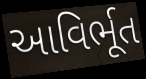
આવિર્ભૂત